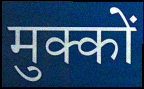
मुक्कों